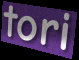
tori